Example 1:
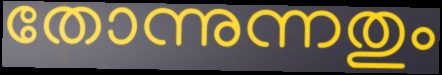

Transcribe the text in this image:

തോന്നുന്നതും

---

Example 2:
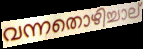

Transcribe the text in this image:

വന്നതൊഴിച്ചാല്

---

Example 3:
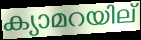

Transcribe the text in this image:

ക്യാമറയില്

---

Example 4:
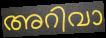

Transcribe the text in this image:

അറിവാ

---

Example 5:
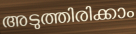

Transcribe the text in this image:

അടുത്തിരിക്കാം